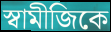
স্বামীজিকে